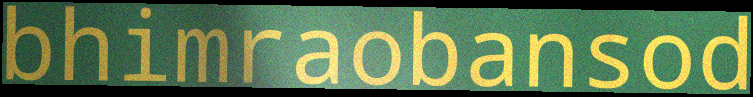
bhimraobansod